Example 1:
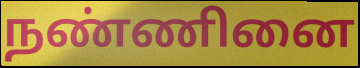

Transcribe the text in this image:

நண்ணினை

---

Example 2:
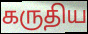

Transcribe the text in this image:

கருதிய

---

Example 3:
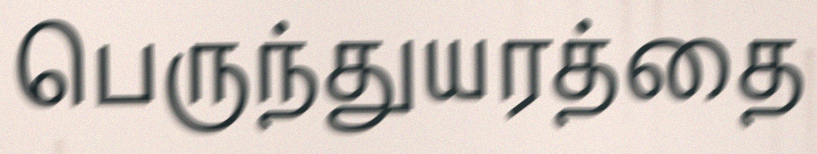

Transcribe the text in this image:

பெருந்துயரத்தை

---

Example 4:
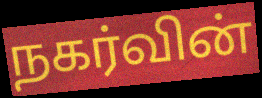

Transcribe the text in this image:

நகர்வின்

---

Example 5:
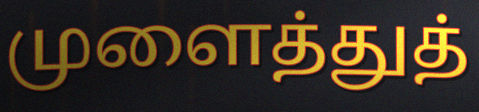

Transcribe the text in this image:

முளைத்துத்